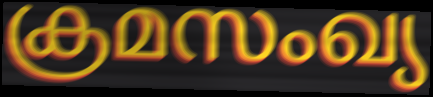
ക്രമസംഖ്യ